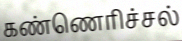
கண்ணெரிச்சல்